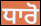
ਧਾਰੋ